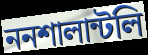
ননশালান্টলি